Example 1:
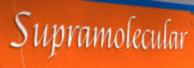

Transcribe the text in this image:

Supramolecular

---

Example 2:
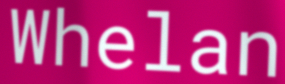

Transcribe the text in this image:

Whelan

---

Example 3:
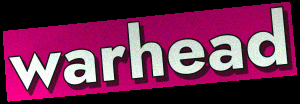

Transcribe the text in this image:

warhead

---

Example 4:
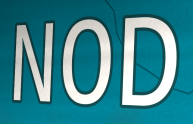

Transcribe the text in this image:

NOD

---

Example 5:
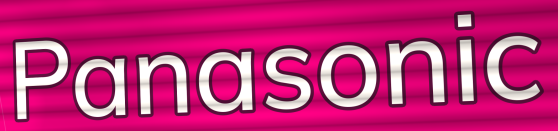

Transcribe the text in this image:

Panasonic